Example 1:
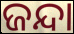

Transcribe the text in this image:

ଜନ୍ଦା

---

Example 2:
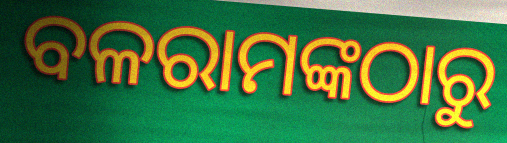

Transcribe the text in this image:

ବଳରାମଙ୍କଠାରୁ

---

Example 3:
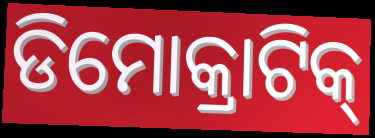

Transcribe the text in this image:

ଡିମୋକ୍ରାଟିକ୍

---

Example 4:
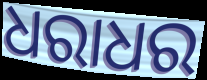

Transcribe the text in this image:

ଧରାଧର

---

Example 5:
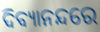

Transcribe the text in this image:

ଦିବ୍ୟାନନ୍ଦରେ